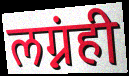
लग्नंही